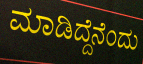
ಮಾಡಿದ್ದೆನೆಂದು